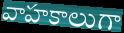
వాహకాలుగా